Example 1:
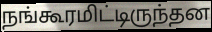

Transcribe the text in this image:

நங்கூரமிட்டிருந்தன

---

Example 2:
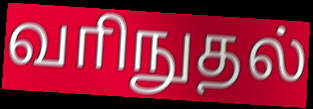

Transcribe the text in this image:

வரிநுதல்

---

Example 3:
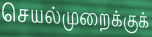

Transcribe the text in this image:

செயல்முறைக்குக்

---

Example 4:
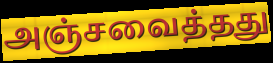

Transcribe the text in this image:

அஞ்சவைத்தது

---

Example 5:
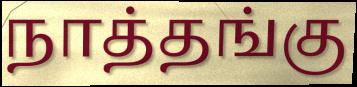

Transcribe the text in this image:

நாத்தங்கு